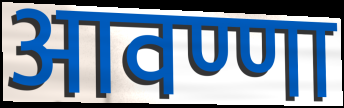
आवण्णा